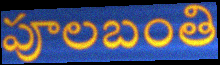
పూలబంతి